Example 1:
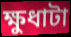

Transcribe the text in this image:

ক্ষুধাটা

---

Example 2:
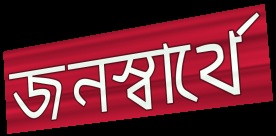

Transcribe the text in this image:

জনস্বার্থে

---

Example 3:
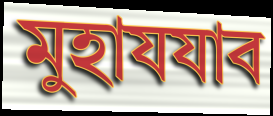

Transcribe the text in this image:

মুহাযযাব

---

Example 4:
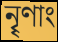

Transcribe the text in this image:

নৄণাং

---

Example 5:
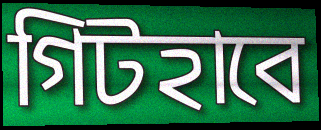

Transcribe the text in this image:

গিটহাবে